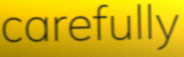
carefully